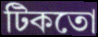
টিকতো